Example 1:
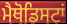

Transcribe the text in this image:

ਮੈਥੋਡਿਸਟਾਂ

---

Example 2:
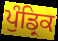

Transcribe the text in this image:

ਪੁੰਡ੍ਰਿਕ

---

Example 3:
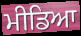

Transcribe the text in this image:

ਮੀਡਿਆ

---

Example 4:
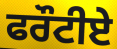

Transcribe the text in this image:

ਫਰੌਟੀਏ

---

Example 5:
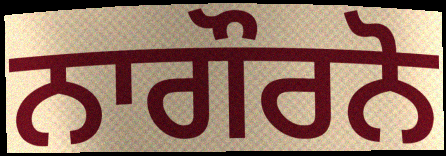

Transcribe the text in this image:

ਨਾਗੌਰਨੋ